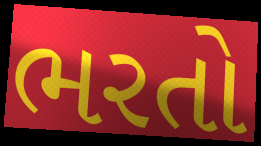
ભરતો